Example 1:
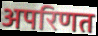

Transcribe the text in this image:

अपरिणत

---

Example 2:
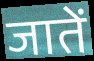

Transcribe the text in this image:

जातें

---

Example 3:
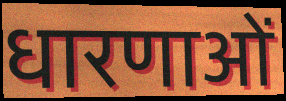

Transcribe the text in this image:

धारणाओं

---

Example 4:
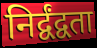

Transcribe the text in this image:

निर्द्वंद्वता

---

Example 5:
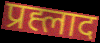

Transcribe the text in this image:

प्रह्लाद